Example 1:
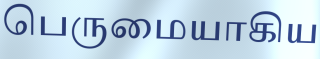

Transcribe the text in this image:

பெருமையாகிய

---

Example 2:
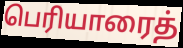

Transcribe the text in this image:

பெரியாரைத்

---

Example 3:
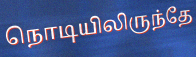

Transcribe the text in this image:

நொடியிலிருந்தே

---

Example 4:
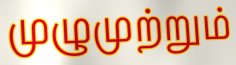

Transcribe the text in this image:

முழுமுற்றும்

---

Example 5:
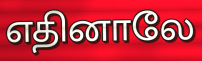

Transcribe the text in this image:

எதினாலே